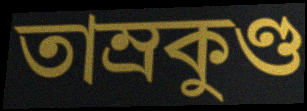
তাম্রকুণ্ড